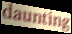
daunting